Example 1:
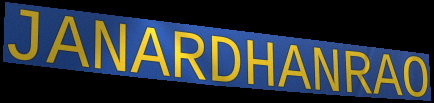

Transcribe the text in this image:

JANARDHANRAO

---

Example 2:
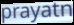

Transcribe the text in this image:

prayatn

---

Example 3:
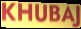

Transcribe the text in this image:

KHUBAJ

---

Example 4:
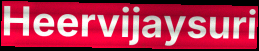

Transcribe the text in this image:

Heervijaysuri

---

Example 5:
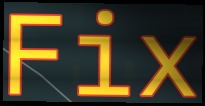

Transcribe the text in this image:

Fix